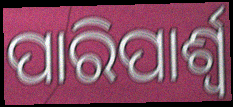
ପାରିପାର୍ଶ୍ୱ